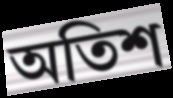
অতিশ